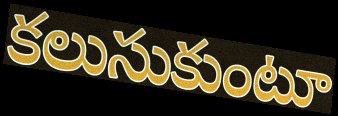
కలుసుకుంటూ